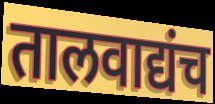
तालवाद्यंच